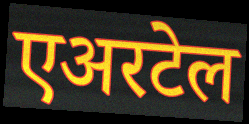
एअरटेल